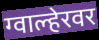
ग्वाल्हेरवर